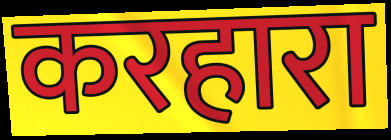
करहारा